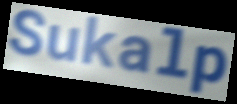
Sukalp